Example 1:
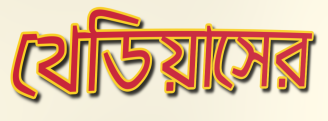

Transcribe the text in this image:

থেডিয়াসের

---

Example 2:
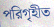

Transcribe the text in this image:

পরিগৃহীত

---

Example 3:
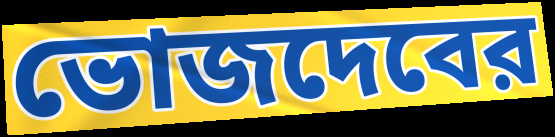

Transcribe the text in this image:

ভোজদেবের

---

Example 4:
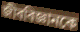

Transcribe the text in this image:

জীববিজ্ঞানকে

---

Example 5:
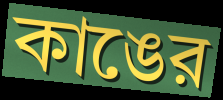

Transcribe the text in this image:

কাঙের